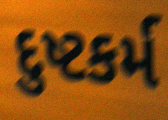
દુષ્ટકર્મ